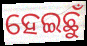
ହେଇଛୁଁ